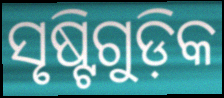
ସୃଷ୍ଟିଗୁଡ଼ିକ